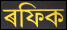
ৰফিক